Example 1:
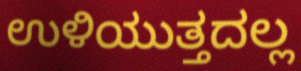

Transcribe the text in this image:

ಉಳಿಯುತ್ತದಲ್ಲ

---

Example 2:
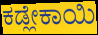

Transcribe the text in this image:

ಕಡ್ಲೇಕಾಯಿ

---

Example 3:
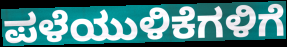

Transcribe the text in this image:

ಪಳೆಯುಳಿಕೆಗಳಿಗೆ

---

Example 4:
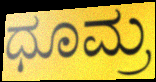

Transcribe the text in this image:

ಧೂಮ್ರ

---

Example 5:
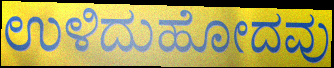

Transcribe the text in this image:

ಉಳಿದುಹೋದವು